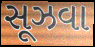
સૂઝવા